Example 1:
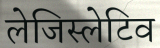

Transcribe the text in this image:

लेजिस्लेटिव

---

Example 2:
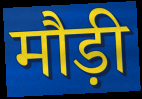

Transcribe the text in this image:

मौड़ी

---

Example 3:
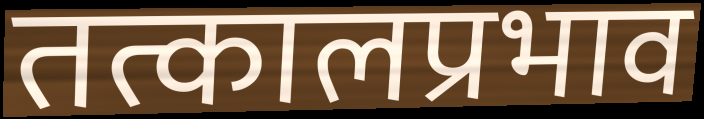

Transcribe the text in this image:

तत्कालप्रभाव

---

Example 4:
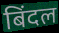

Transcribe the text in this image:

बिंदल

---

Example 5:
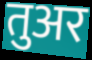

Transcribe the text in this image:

तुअर